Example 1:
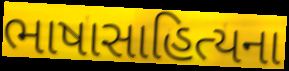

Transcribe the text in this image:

ભાષાસાહિત્યના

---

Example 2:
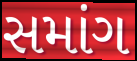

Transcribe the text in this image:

સમાંગ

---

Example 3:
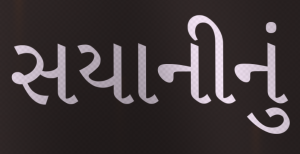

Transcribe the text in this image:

સયાનીનું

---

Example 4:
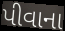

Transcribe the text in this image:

પીવાના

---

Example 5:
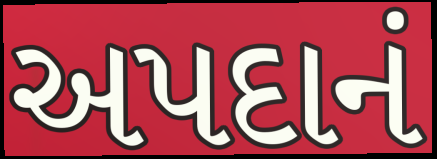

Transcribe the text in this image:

અપદાનં